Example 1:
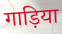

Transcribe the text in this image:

गाड़िया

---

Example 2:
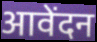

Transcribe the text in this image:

आवेंदन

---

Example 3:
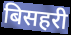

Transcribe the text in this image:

बिसहरी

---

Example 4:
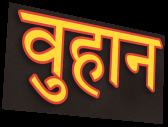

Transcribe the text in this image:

वुहान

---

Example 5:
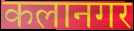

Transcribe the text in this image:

कलानगर